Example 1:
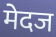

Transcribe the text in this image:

मेदज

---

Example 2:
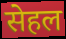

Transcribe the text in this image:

सेहल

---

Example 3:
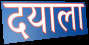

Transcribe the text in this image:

दयाला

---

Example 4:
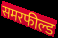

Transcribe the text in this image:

समरफील्ड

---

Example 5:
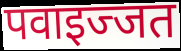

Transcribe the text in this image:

पवाइज्जत